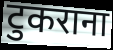
टुकराना